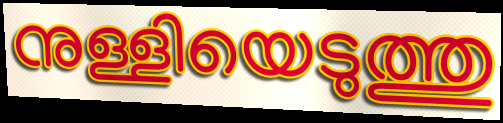
നുള്ളിയെടുത്തു